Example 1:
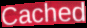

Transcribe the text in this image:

Cached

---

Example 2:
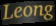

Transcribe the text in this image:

Leong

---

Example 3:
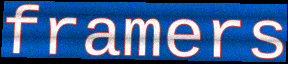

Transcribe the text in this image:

framers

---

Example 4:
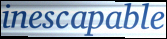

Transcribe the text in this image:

inescapable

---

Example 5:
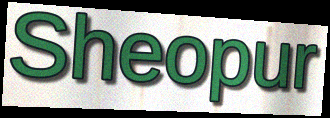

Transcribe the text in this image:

Sheopur